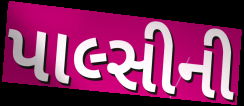
પાલ્સીની